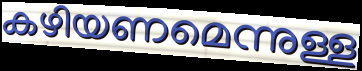
കഴിയണമെന്നുള്ള